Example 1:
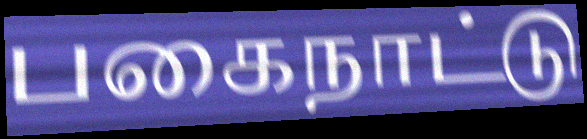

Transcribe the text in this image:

பகைநாட்டு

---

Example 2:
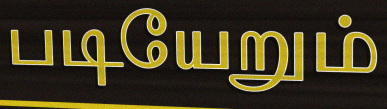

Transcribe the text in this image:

படியேறும்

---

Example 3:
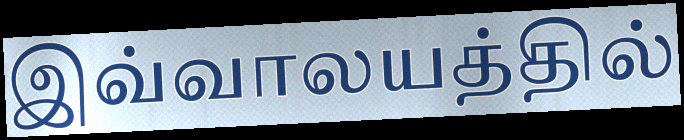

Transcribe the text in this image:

இவ்வாலயத்தில்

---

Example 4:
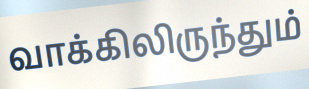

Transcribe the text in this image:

வாக்கிலிருந்தும்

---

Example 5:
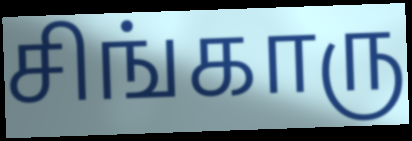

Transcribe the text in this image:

சிங்காரு